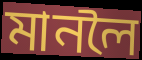
মানলৈ